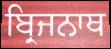
ਬ੍ਰਿਜਨਾਥ